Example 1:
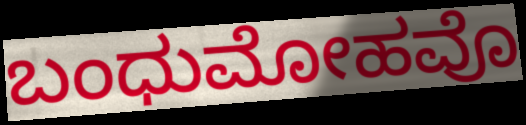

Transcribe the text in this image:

ಬಂಧುಮೋಹವೊ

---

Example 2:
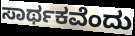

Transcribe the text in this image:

ಸಾರ್ಥಕವೆಂದು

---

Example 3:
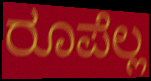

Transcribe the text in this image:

ರೂಪೆಲ್ಲ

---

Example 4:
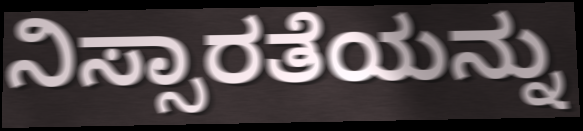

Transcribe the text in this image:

ನಿಸ್ಸಾರತೆಯನ್ನು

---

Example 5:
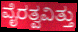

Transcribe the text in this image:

ವೈರತ್ವವಿತ್ತು